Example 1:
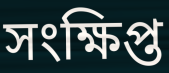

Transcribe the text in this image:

সংক্ষিপ্ত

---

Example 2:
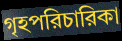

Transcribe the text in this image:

গৃহপরিচারিকা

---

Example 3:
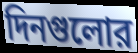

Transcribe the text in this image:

দিনগুলোর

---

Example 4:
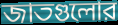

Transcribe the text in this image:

জাতগুলোর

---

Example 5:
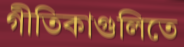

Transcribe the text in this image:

গীতিকাগুলিতে